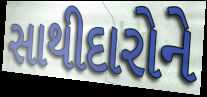
સાથીદારોને